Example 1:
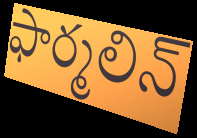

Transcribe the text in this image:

ఫార్మలిన్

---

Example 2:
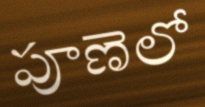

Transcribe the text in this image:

పూణెలో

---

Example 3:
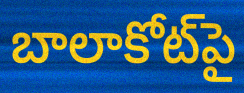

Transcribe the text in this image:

బాలాకోట్‌పై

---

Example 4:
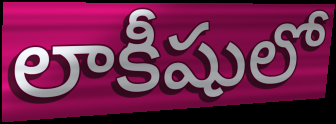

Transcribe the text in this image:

లాకీషులో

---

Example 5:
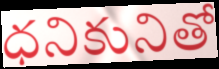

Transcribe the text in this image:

ధనికునితో